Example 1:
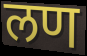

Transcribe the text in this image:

लण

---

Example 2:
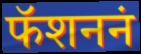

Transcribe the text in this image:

फॅशननं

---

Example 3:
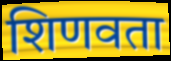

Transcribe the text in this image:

शिणवता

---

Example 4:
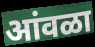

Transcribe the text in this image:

आंवळा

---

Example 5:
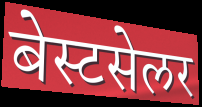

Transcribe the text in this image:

बेस्टसेलर